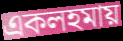
একলহমায়